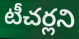
టీచర్లని